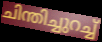
ചിന്തിച്ചുറച്ച്